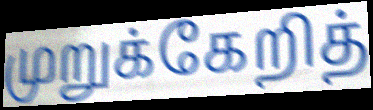
முறுக்கேறித்